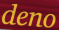
deno